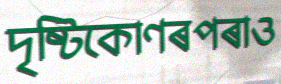
দৃষ্টিকোণৰপৰাও